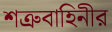
শত্রুবাহিনীর